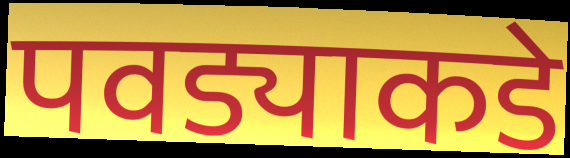
पवड्याकडे